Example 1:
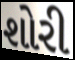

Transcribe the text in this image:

શોરી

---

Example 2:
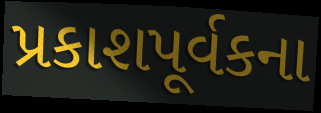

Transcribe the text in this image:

પ્રકાશપૂર્વકના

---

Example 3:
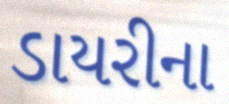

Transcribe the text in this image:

ડાયરીના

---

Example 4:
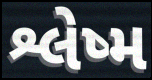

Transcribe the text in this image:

શ્લેષ્મ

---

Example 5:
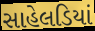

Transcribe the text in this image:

સાહેલડિયાં